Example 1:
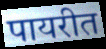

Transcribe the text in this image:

पायरीत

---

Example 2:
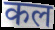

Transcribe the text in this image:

कल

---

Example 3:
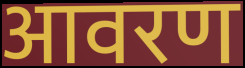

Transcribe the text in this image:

आवरण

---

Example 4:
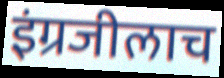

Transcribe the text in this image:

इंग्रजीलाच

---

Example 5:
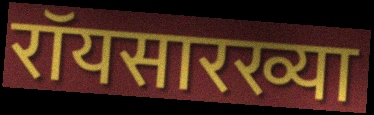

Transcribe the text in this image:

रॉयसारख्या